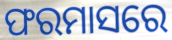
ଫରମାସରେ